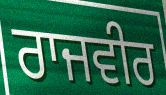
ਰਾਜਵੀਰ